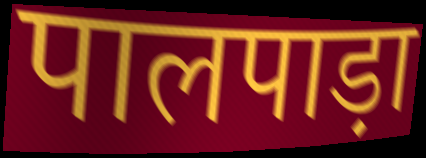
पालपाड़ा